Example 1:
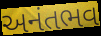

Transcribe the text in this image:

અનંતભવ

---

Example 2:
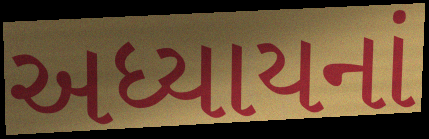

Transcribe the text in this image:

અધ્યાયનાં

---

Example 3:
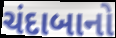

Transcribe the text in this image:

ચંદાબાનો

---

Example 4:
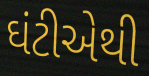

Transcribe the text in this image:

ઘંટીએથી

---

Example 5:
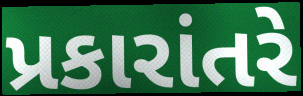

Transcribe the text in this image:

પ્રકારાંતરે